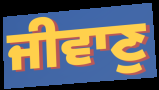
ਜੀਵਾਣੁ